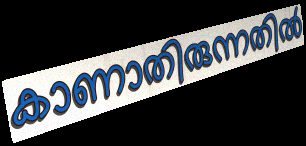
കാണാതിരുന്നതിൽ